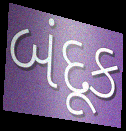
બંદૂક